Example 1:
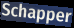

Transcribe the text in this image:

Schapper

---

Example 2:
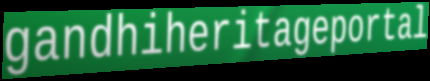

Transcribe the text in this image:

gandhiheritageportal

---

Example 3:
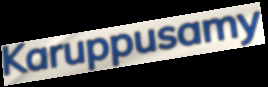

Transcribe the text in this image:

Karuppusamy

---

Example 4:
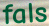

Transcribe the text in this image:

fals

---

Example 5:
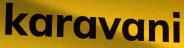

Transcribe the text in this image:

karavani